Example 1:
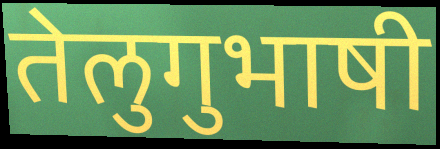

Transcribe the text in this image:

तेलुगुभाषी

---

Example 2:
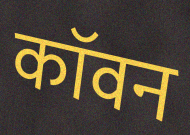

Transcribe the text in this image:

कॉवन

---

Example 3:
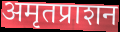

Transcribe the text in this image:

अमृतप्राशन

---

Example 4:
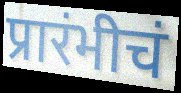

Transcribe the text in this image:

प्रारंभीचं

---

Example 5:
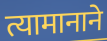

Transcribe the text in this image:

त्यामानाने